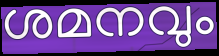
ശമനവും